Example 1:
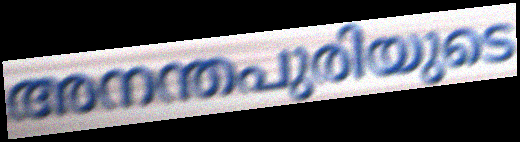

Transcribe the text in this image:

അനന്തപുരിയുടെ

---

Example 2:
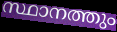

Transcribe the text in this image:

സ്ഥാനത്തും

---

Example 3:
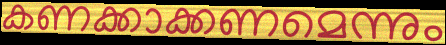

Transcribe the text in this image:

കണക്കാക്കണമെന്നും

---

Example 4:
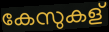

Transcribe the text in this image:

കേസുകള്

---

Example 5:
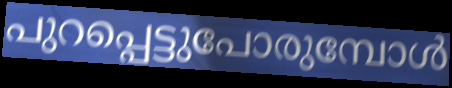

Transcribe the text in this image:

പുറപ്പെട്ടുപോരുമ്പോൾ